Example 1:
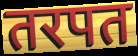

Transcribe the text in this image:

तरपत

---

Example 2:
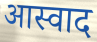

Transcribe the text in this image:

आस्वाद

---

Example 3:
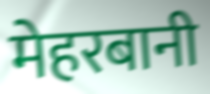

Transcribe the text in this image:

मेहरबानी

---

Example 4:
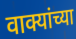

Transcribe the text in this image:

वाक्यांच्या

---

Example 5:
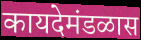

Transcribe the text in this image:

कायदेमंडळास